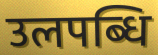
उलपब्धि